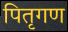
पितृगण